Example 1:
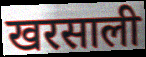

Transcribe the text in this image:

खरसाली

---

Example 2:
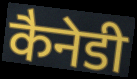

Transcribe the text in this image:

कैनेडी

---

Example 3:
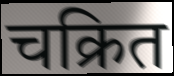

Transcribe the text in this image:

चक्रित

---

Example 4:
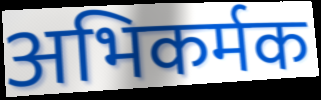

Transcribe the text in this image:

अभिकर्मक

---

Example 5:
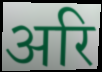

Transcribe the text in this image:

अरि